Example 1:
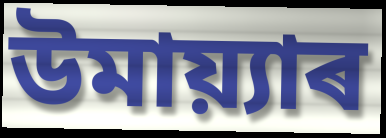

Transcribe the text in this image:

উমায়্যাৰ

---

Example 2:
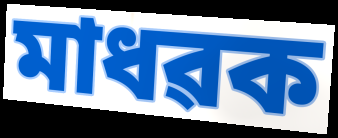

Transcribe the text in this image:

মাধৱক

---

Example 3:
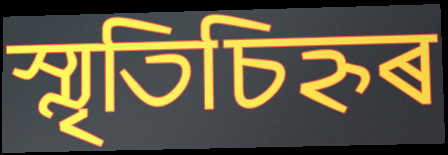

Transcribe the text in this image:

স্মৃতিচিহ্নৰ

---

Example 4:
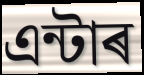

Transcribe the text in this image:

এন্টাৰ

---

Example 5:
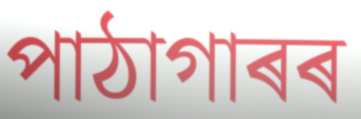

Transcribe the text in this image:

পাঠাগাৰৰ